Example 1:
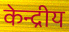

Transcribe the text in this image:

केन्‍द्रीय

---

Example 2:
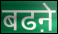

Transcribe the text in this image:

बढऩे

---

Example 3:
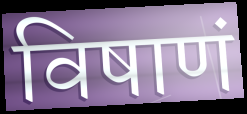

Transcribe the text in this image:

विषाणं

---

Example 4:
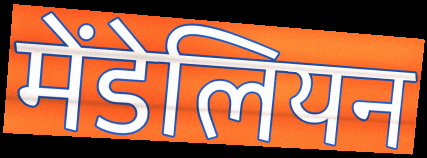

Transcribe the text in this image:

मेंडेलियन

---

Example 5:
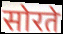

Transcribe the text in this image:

सोरते